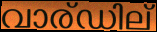
വാര്ഡില്